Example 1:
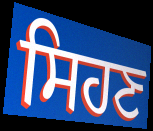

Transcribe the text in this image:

ਸਿਹਣ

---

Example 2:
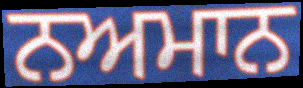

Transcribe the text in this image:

ਨਅਮਾਨ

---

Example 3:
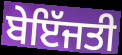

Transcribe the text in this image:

ਬੇਇੱਜਤੀ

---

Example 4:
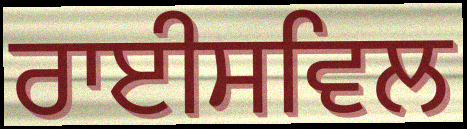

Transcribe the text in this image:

ਰਾਈਸਵਿਲ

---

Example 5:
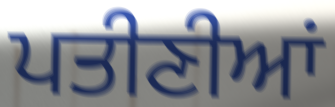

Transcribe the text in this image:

ਪਤੀਣੀਆਂ